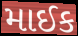
માઈક